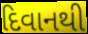
દિવાનથી